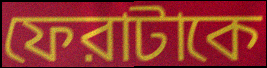
ফেরাটাকে